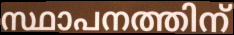
സ്ഥാപനത്തിന്